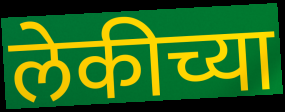
लेकीच्या